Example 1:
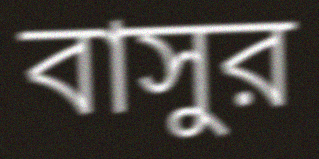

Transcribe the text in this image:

বাসুর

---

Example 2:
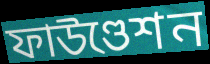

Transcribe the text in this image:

ফাউণ্ডেশন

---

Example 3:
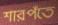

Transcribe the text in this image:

শারপঁতে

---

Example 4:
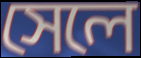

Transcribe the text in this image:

সেলে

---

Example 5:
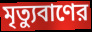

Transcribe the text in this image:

মৃত্যুবাণের